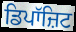
ਡਿਪਾੱਜ਼ਿਟ